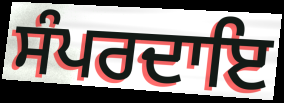
ਸੰਪਰਦਾਇ